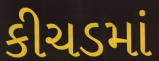
કીચડમાં